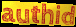
authid